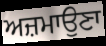
ਅਜ਼ਮਾਉਣਾ